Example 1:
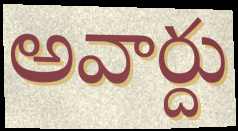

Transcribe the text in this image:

అవార్దు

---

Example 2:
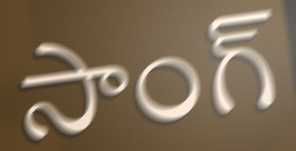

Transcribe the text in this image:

సాంగ్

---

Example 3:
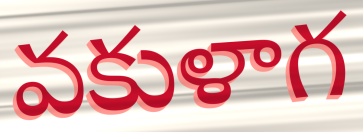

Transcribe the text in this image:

వకుళాగ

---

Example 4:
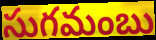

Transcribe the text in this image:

సుగమంబు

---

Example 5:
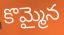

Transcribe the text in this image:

కొమ్మైన